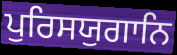
ਪੁਰਿਸਯੁਗਾਨਿ